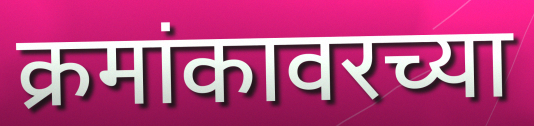
क्रमांकावरच्या